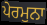
ਪੇਰਮੁਨਾ